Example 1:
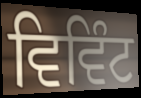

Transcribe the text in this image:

ਵਿਵਿੰਟ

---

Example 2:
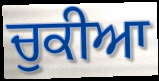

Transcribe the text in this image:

ਚੁਕੀਆ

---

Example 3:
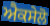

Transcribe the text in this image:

ਐਕਸੇਲੋ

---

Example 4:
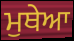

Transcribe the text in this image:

ਮੁਥੇਆ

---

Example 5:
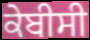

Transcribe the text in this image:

ਕੇਬੀਸੀ